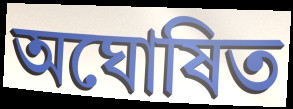
অঘোষিত